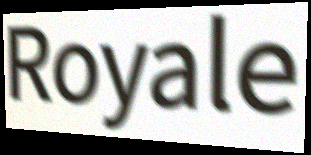
Royale